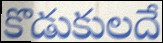
కొడుకులదే